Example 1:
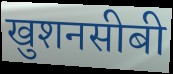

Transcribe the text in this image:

खुशनसीबी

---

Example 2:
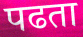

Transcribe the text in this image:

पढता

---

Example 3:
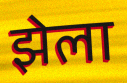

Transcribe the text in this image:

झेला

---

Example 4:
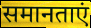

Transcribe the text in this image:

समानताएं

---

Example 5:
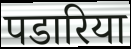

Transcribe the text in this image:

पडारिया